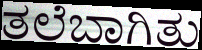
ತಲೆಬಾಗಿತು